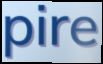
pire